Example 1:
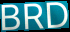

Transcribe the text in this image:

BRD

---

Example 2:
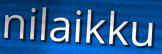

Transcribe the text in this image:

nilaikku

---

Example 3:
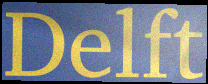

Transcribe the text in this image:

Delft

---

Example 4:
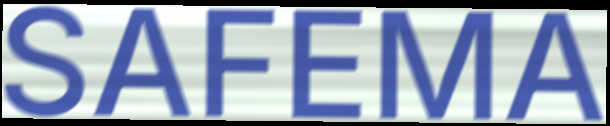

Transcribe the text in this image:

SAFEMA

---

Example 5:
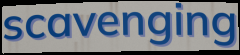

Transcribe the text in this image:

scavenging